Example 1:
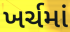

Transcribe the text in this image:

ખર્ચમાં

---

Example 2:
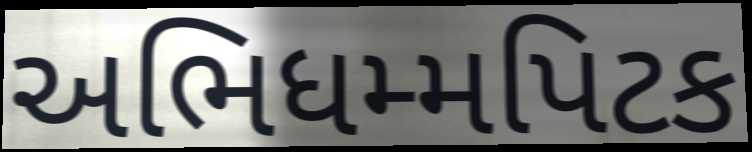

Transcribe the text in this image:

અભિધમ્મપિટક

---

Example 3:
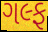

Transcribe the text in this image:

ગલ્ફ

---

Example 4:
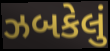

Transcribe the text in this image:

ઝબકેલું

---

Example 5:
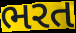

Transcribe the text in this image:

ભરત